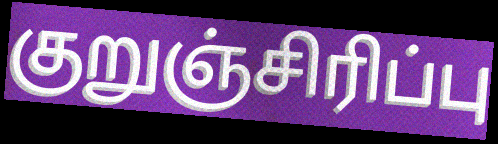
குறுஞ்சிரிப்பு